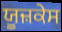
ਯੂਜ਼ਕੇਸ